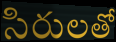
సిరులతో